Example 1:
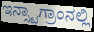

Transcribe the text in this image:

ಇನ್ಸ್ಟಾಗ್ರಾಂನಲ್ಲಿ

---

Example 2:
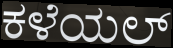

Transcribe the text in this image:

ಕಳೆಯಲ್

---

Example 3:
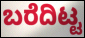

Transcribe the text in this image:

ಬರೆದಿಟ್ಟ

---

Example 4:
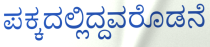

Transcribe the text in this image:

ಪಕ್ಕದಲ್ಲಿದ್ದವರೊಡನೆ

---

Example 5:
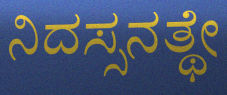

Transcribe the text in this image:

ನಿದಸ್ಸನತ್ಥೇ